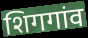
शिगगांव